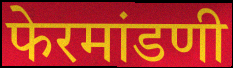
फेरमांडणी